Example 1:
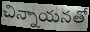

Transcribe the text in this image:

చిన్నాయనతో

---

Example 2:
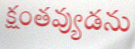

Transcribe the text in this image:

క్షంతవ్యుడను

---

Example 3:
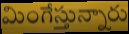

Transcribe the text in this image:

మింగేస్తున్నారు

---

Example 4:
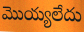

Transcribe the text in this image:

మొయ్యలేదు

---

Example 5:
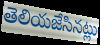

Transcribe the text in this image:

తెలియజేసినట్లు